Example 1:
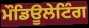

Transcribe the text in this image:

ਮੌਡਿਊਲੇਟਿੰਗ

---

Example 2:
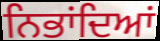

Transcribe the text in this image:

ਨਿਭਾਂਦਿਆਂ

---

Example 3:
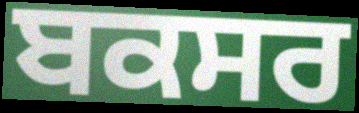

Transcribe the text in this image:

ਬਕਸਰ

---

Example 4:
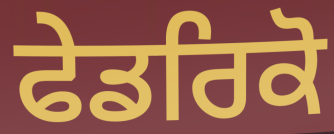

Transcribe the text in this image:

ਫੇਡਰਿਕੋ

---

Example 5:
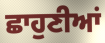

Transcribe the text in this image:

ਛਾਹੁਣੀਆਂ